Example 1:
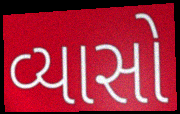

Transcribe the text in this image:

વ્યાસો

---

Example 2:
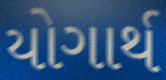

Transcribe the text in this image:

યોગાર્થ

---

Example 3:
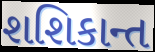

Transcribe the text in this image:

શશિકાન્ત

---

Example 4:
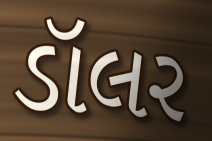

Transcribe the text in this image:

ડૉલર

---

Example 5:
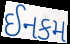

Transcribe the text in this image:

ઈનકમ